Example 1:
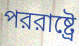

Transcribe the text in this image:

পররাষ্ট্রে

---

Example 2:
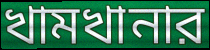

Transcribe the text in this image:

খামখানার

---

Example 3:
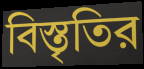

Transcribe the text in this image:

বিস্তৃতির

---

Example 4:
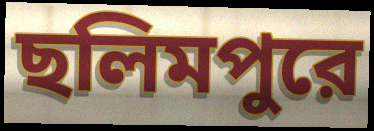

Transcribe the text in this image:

ছলিমপুরে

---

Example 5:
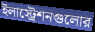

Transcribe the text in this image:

ইলাস্ট্রেশনগুলোর